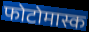
फोटोमास्क